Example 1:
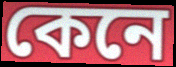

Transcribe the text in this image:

কেনে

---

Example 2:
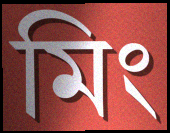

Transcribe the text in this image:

মিং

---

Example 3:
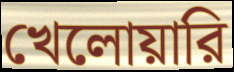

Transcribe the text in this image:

খেলোয়ারি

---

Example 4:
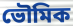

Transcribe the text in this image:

ভৌমিক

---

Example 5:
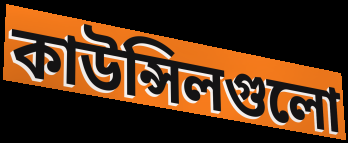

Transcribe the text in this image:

কাউন্সিলগুলো